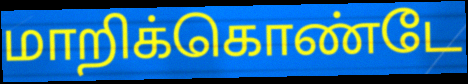
மாறிக்கொண்டே